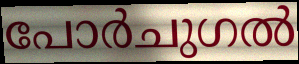
പോർചുഗൽ